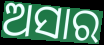
ଅସାର